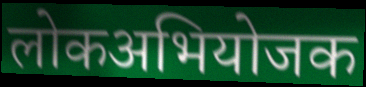
लोकअभियोजक